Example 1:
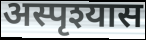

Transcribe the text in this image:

अस्पृश्यास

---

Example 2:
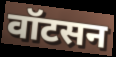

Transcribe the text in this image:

वॉटसन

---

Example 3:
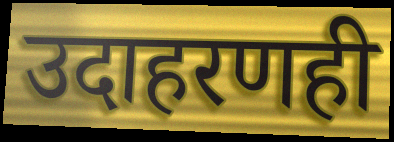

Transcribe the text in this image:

उदाहरणही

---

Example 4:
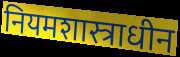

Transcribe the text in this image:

नियमशास्त्राधीन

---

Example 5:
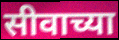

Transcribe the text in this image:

सीवाच्या